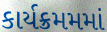
કાર્યક્રમમમાં